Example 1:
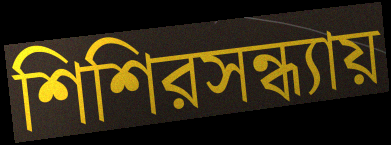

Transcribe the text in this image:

শিশিরসন্ধ্যায়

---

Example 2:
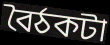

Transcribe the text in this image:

বৈঠকটা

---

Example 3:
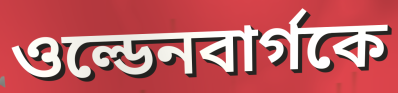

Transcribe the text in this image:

ওল্ডেনবার্গকে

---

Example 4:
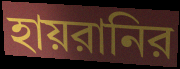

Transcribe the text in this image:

হায়রানির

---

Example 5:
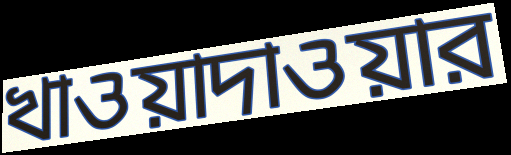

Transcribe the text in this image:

খাওয়াদাওয়ার